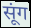
सूंग